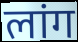
लांग